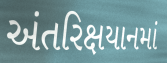
અંતરિક્ષયાનમાં